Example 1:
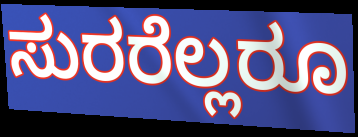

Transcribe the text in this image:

ಸುರರೆಲ್ಲರೂ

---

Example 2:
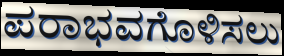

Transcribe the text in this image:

ಪರಾಭವಗೊಳಿಸಲು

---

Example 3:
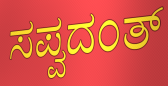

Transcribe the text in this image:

ಸಪ್ವದಂತ್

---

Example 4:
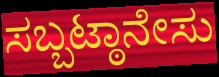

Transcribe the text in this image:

ಸಬ್ಬಟ್ಠಾನೇಸು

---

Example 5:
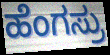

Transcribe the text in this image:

ಹೆಂಗಸ್ರು